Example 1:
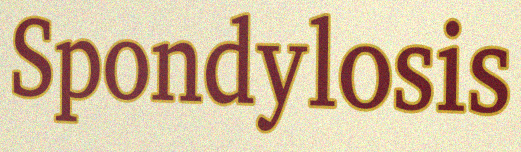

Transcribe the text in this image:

Spondylosis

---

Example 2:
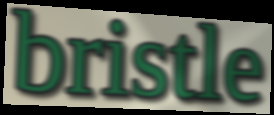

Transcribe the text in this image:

bristle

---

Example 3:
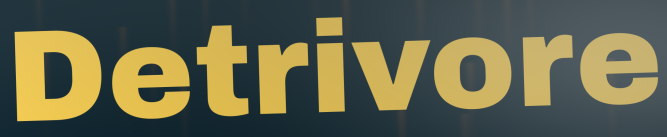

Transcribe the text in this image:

Detrivore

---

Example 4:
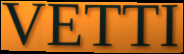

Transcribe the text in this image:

VETTI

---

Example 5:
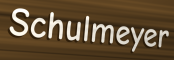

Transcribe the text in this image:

Schulmeyer